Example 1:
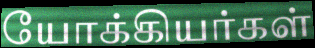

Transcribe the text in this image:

யோக்கியர்கள்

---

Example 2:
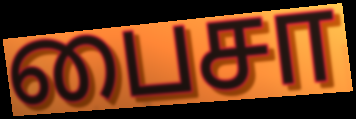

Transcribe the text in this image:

பைசா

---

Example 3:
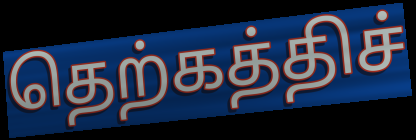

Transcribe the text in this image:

தெற்கத்திச்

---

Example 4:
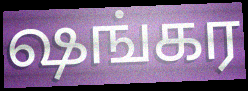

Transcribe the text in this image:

ஷங்கர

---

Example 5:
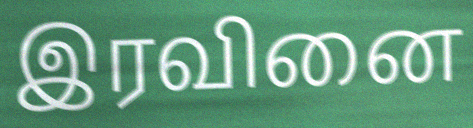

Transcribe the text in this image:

இரவினை